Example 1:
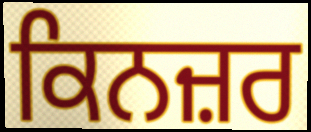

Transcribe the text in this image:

ਕਿਨਜ਼ਰ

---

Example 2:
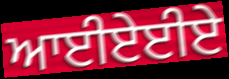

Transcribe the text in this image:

ਆਈਏਈਏ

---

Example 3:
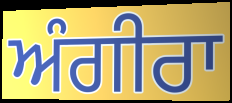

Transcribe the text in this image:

ਅੰਗੀਰਾ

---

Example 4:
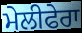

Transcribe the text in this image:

ਮੇਲੀਫੇਰਾ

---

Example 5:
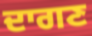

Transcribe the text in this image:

ਦਾਗਣ